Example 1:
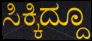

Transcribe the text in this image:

ಸಿಕ್ಕಿದ್ದೂ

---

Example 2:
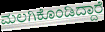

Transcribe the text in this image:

ಮಲಗಿಕೊಂಡಿದ್ದಾರೆ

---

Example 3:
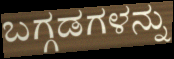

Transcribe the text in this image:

ಬಗ್ಗಡಗಳನ್ನು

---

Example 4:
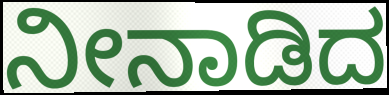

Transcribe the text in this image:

ನೀನಾಡಿದ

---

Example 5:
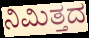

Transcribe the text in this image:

ನಿಮಿತ್ತದ